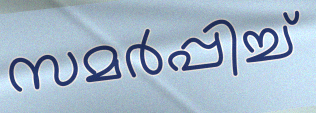
സമർപ്പിച്ച്